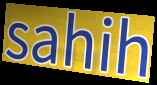
sahih